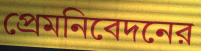
প্রেমনিবেদনের